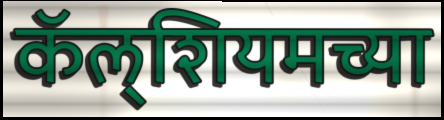
कॅल्शियमच्या